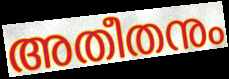
അതീതനും